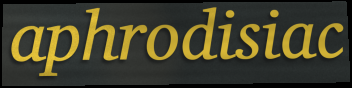
aphrodisiac